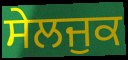
ਸੇਲਜੁਕ